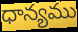
ధాన్యము